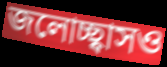
জলোচ্ছ্বাসও